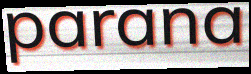
parana